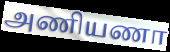
அணியணா